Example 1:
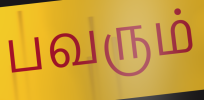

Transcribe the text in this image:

பவரும்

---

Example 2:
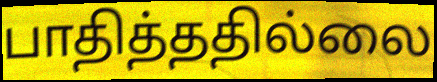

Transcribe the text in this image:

பாதித்ததில்லை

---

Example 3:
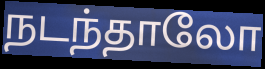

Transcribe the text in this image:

நடந்தாலோ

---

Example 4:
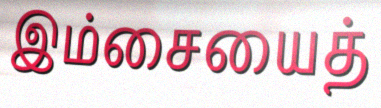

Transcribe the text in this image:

இம்சையைத்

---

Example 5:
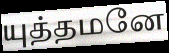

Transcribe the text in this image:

யுத்தமனே